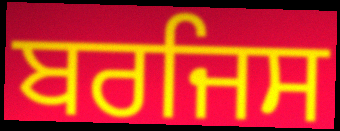
ਬਰਜਿਸ